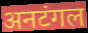
अनटंगल